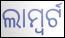
ଲାମ୍ବର୍ଟ